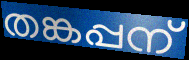
തങ്കപ്പന്